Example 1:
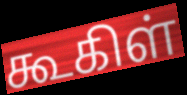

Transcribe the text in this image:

கூகிள்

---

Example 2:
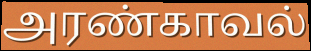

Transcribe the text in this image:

அரண்காவல்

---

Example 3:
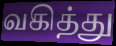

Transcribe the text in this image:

வகித்து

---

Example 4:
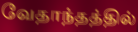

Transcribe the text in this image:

வேதாந்தத்தில்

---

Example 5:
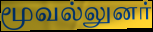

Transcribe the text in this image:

மூவல்லுனர்